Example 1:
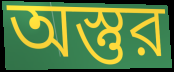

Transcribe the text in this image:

অস্তুর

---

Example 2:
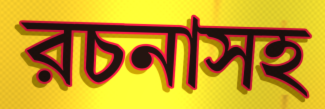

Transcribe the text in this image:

রচনাসহ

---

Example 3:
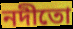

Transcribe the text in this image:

নদীতো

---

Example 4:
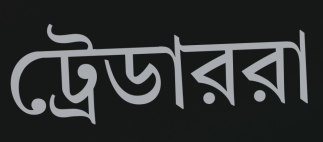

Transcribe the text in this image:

ট্রেডাররা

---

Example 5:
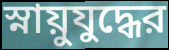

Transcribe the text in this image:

স্নায়ুযুদ্ধের